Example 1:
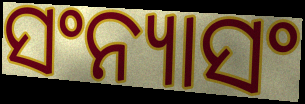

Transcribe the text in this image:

ସଂନ୍ୟାସଂ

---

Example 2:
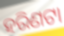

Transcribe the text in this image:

ହରିଣଟା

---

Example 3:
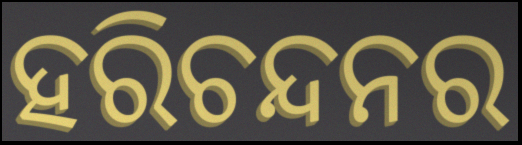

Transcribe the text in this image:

ହରିଚନ୍ଦନର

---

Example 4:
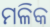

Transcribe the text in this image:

ମଳିକ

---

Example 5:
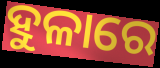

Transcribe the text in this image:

ହୁଳାରେ